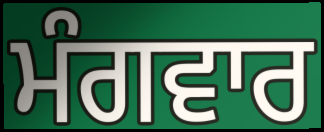
ਮੰਗਵਾਰ